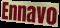
Ennavo